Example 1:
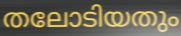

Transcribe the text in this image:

തലോടിയതും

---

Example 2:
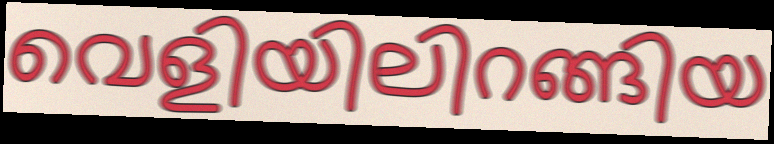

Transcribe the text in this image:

വെളിയിലിറങ്ങിയ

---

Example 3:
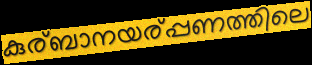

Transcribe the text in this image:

കുര്ബാനയര്പ്പണത്തിലെ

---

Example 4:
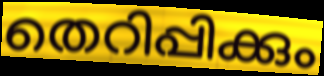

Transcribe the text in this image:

തെറിപ്പിക്കും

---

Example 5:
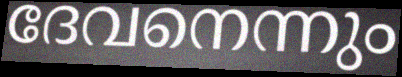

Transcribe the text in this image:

ദേവനെന്നും